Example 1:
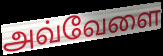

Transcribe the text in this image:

அவ்வேளை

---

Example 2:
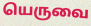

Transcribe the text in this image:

யெருவை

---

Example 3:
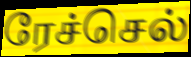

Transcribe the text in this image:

ரேச்செல்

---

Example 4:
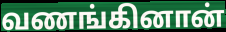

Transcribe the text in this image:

வணங்கினான்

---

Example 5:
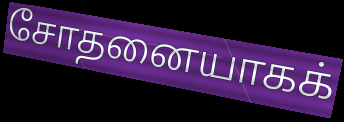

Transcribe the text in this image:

சோதனையாகக்